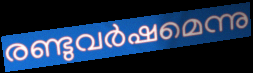
രണ്ടുവർഷമെന്നു